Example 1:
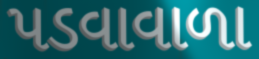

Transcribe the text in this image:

પડવાવાળા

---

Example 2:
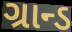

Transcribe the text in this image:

ગ્રાન્ડ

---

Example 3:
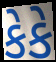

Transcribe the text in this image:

કેકે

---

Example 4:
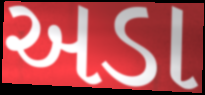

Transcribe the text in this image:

અડા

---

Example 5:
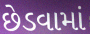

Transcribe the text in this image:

છેડવામાં